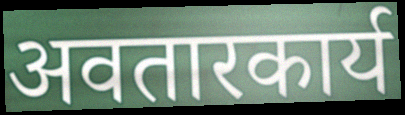
अवतारकार्य